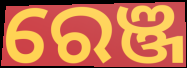
ରେଞ୍ଜ